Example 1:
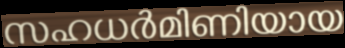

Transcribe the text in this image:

സഹധർമിണിയായ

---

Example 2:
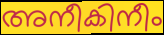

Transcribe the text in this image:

അനീകിനീം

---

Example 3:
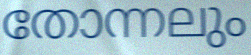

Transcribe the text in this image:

തോന്നലും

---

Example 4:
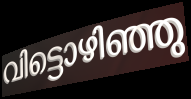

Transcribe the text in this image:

വിട്ടൊഴിഞ്ഞു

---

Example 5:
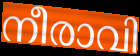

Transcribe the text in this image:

നീരാവി